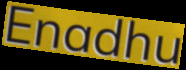
Enadhu